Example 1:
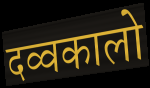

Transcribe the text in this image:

दव्वकालो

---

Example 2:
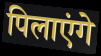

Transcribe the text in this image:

पिलाएंगे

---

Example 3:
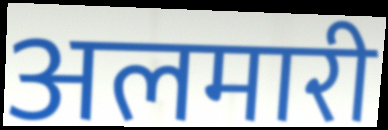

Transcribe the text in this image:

अलमारी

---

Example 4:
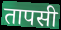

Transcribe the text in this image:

तापसी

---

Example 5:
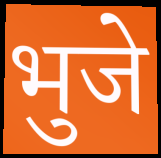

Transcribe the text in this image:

भुजे